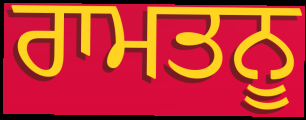
ਰਾਮਤਨੂ